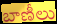
బాణీలు